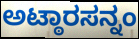
ಅಟ್ಠಾರಸನ್ನಂ